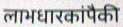
लाभधारकांपैकी